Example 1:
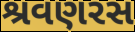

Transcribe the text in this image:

શ્રવણરસ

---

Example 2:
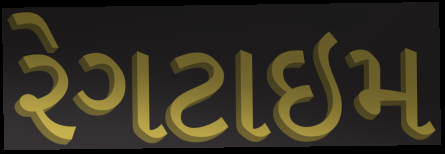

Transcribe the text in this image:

રેગટાઇમ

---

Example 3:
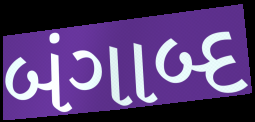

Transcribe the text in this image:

બંગાબ્દ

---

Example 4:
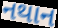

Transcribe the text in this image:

નથાન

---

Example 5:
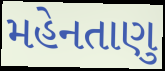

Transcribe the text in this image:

મહેનતાણુ